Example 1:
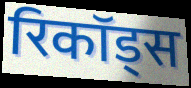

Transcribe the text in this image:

रिकॉड्स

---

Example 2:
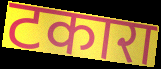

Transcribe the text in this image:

टकारा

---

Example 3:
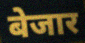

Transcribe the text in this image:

बेजार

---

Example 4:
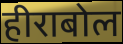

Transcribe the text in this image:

हीराबोल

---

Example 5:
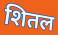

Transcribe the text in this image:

शितल